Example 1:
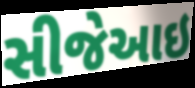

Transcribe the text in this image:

સીજેઆઇ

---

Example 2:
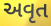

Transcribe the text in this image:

અવૃત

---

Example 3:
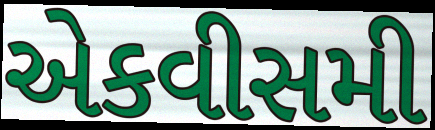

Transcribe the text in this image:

એકવીસમી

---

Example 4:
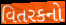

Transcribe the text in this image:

વિતરકનો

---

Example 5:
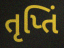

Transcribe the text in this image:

તૃપ્તિં